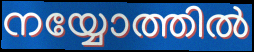
നയ്യോത്തിൽ